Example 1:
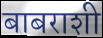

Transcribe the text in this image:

बाबराशी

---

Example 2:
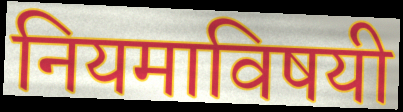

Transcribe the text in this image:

नियमाविषयी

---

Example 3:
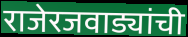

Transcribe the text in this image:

राजेरजवाड्यांची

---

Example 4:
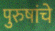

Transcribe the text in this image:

पुरुषांचे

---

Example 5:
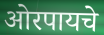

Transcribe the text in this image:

ओरपायचे